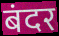
बंदर